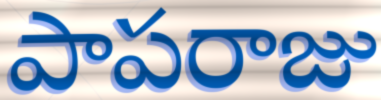
పాపరాజు